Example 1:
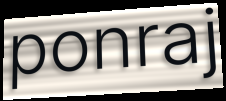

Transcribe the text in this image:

ponraj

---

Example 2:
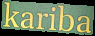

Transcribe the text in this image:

kariba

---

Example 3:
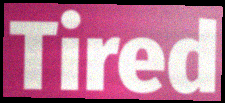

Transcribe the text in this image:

Tired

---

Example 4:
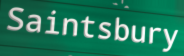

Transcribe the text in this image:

Saintsbury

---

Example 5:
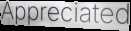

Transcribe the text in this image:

Appreciated